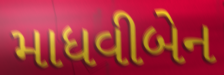
માધવીબેન